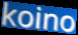
koino